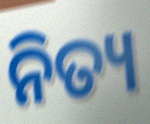
ନିତ୍ୟ